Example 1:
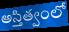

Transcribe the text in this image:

అస్తిత్వంలో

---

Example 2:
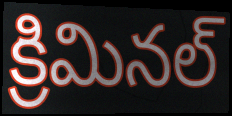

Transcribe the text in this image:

క్రిమినల్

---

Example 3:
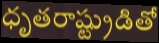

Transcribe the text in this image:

ధృతరాష్ట్రుడితో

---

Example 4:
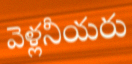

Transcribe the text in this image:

వెళ్లనీయరు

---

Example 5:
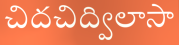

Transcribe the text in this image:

చిదచిద్విలాసా